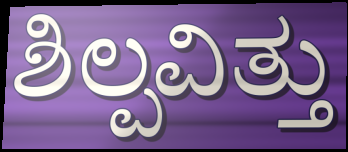
ಶಿಲ್ಪವಿತ್ತು